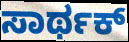
ಸಾರ್ಥಕ್